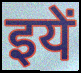
इयें